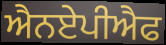
ਐਨਏਪੀਐਫ